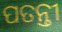
ପତନ୍ତୀ